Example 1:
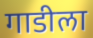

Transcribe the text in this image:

गाडीला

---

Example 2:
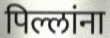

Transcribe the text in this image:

पिल्लांना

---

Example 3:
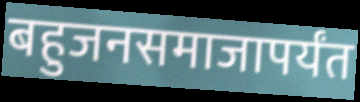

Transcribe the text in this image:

बहुजनसमाजापर्यंत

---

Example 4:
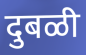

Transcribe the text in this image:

दुबळी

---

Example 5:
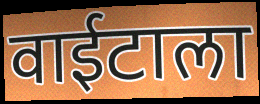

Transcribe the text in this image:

वाईटाला